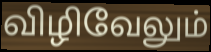
விழிவேலும்